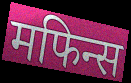
मफिन्स